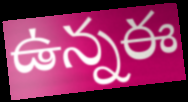
ఉన్నఈ